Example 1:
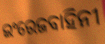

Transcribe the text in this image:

ଇଂରେଜବାହିନୀ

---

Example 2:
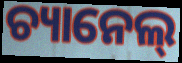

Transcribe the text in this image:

ଚ୍ୟାନେଲ୍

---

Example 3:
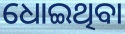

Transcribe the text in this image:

ଧୋଇଥିବା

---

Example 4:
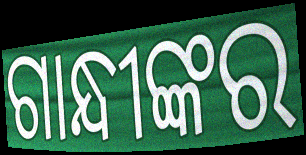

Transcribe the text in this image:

ଗାନ୍ଧୀଙ୍କର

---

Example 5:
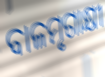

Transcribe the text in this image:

ବାଳମୃଗାକ୍ଷୀ